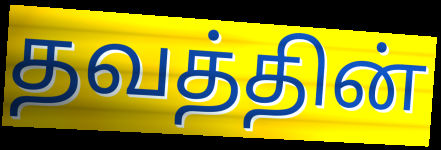
தவத்தின்